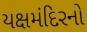
યક્ષમંદિરનો